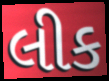
લીક